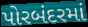
પોરબંદરમાં